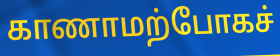
காணாமற்போகச்